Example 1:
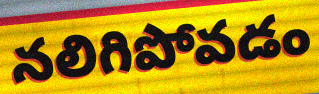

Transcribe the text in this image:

నలిగిపోవడం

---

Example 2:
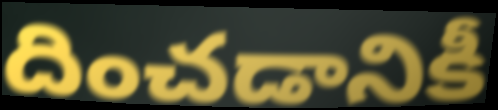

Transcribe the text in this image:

దించడానికీ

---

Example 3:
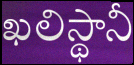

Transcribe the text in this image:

ఖలిస్థానీ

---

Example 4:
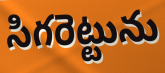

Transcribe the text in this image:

సిగరెట్టును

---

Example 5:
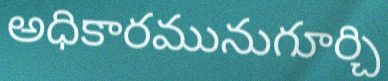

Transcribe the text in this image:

అధికారమునుగూర్చి